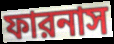
ফারনাস